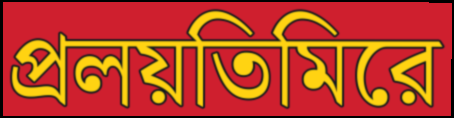
প্রলয়তিমিরে